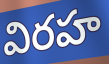
విరహ